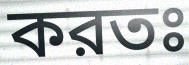
করতঃ